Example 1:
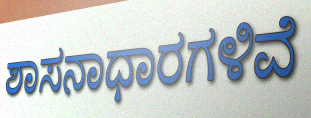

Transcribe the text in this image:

ಶಾಸನಾಧಾರಗಳಿವೆ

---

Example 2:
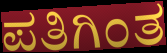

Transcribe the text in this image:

ಪತಿಗಿಂತ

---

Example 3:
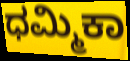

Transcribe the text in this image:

ಧಮ್ಮಿಕಾ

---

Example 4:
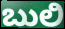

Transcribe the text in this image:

ಬುಲಿ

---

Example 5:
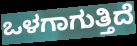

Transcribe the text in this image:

ಒಳಗಾಗುತ್ತಿದೆ